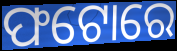
ଫଟୋରେ